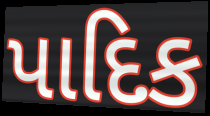
પાદિક